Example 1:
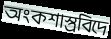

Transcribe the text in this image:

অংকশাস্ত্ৰবিদে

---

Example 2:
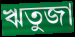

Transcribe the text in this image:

ঋতুজা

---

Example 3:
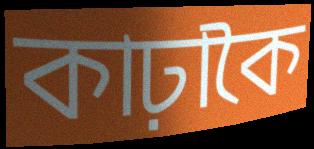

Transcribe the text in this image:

কাঢ়াকৈ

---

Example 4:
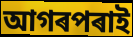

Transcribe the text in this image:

আগৰপৰাই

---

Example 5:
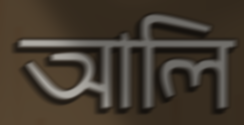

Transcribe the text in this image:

আলি